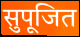
सुपूजित